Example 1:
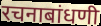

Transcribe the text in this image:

रचनाबांधणी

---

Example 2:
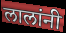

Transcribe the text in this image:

लालांनी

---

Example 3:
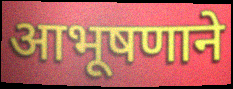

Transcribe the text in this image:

आभूषणाने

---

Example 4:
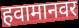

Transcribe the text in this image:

हवामानवर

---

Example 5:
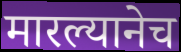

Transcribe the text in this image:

मारल्यानेच